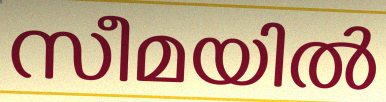
സീമയിൽ